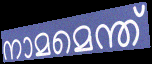
നാമമെന്ത്